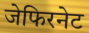
जेफिरनेट